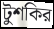
টুশকির